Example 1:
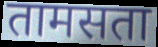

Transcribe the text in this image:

तामसता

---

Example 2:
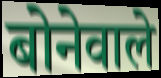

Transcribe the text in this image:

बोनेवाले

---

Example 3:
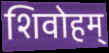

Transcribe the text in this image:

शिवोहम्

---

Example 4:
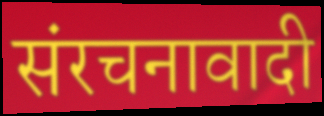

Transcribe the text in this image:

संरचनावादी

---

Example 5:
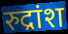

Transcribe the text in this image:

रुद्रांश